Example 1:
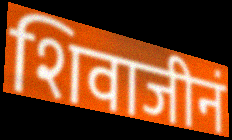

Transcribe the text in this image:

शिवाजीनं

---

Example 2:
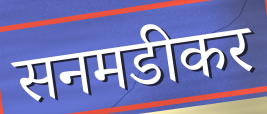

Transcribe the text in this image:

सनमडीकर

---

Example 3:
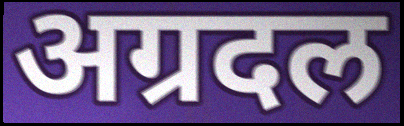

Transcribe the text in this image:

अग्रदल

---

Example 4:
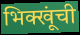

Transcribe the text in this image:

भिक्खूंची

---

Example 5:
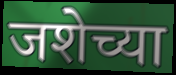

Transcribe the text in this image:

जशेच्या